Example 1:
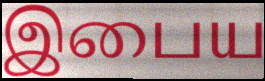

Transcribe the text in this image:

இபைய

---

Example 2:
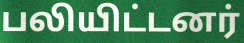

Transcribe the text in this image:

பலியிட்டனர்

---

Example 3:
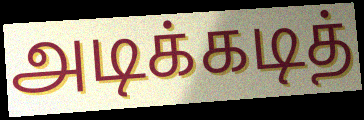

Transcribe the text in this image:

அடிக்கடித்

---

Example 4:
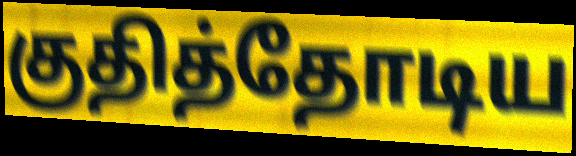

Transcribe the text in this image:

குதித்தோடிய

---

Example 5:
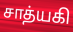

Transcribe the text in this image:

சாத்யகி